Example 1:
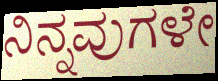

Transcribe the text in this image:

ನಿನ್ನವುಗಳೇ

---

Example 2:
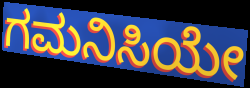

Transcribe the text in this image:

ಗಮನಿಸಿಯೇ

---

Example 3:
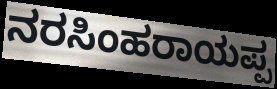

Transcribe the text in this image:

ನರಸಿಂಹರಾಯಪ್ಪ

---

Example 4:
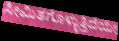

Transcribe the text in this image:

ಸೀಮಿತಗೊಳ್ಳುತ್ತಿದೆಯೇ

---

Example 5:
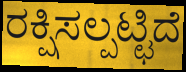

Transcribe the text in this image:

ರಕ್ಷಿಸಲ್ಪಟ್ಟಿದೆ